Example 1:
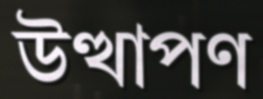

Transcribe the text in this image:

উত্থাপণ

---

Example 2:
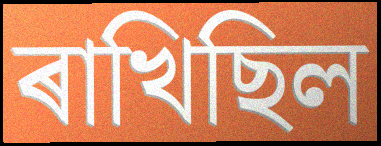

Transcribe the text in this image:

ৰাখিছিল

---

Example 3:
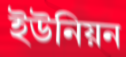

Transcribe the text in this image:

ইউনিয়ন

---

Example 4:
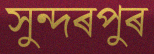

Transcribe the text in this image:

সুন্দৰপুৰ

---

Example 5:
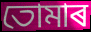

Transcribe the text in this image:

তোমাৰ